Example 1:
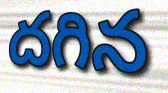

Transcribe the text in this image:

దగిన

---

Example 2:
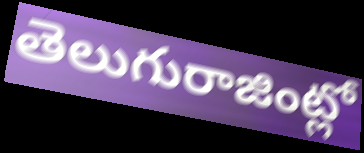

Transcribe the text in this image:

తెలుగురాజింట్లో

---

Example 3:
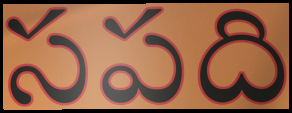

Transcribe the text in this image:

సపది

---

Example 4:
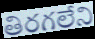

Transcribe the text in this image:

తిరగలేని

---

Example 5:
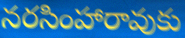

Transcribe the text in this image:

నరసింహారావుకు